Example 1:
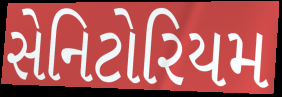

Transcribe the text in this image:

સેનિટોરિયમ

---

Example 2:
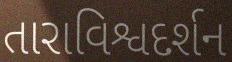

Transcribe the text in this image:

તારાવિશ્વદર્શન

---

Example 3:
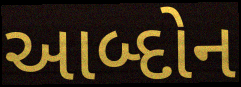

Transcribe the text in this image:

આબ્દોન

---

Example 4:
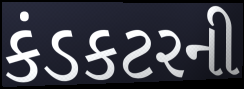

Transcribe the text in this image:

કંડકટરની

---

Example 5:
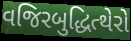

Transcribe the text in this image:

વજિરબુદ્ધિત્થેરો